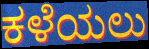
ಕಳೆಯಲು